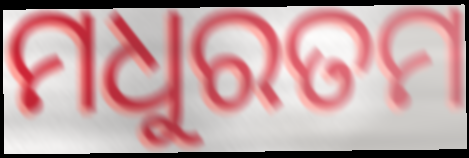
ମଧୁରତମ